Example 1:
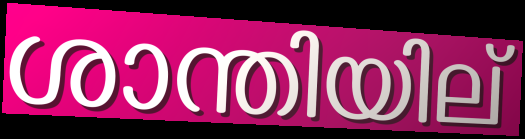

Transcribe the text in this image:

ശാന്തിയില്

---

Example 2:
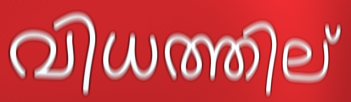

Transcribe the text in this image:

വിധത്തില്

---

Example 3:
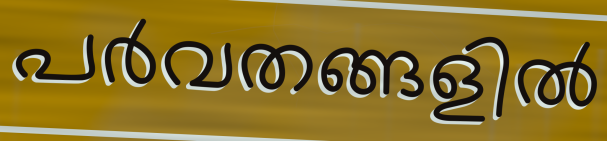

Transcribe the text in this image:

പർവതങ്ങളിൽ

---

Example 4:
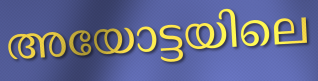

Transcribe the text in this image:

അയോട്ടയിലെ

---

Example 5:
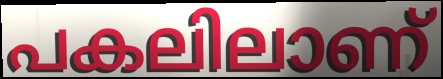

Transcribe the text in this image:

പകലിലാണ്